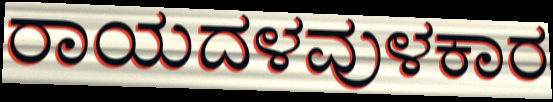
ರಾಯದಳವುಳಕಾರ